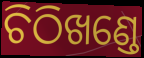
ଚିଠିଖଣ୍ଡେ